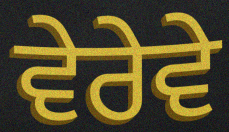
ਵੇਰੇਵੇ